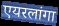
एयरलांगा